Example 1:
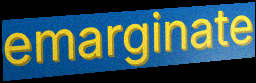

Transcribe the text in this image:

emarginate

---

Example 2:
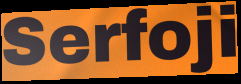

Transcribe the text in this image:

Serfoji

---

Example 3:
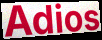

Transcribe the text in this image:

Adios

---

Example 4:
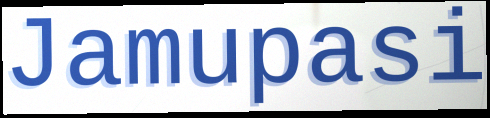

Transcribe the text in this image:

Jamupasi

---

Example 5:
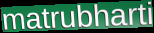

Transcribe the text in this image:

matrubharti